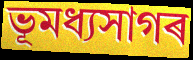
ভূমধ্যসাগৰ